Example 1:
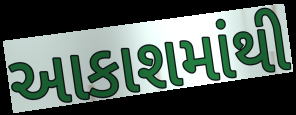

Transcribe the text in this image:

આકાશમાંથી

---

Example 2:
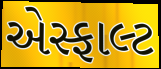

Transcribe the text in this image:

એસ્ફાલ્ટ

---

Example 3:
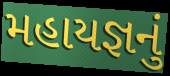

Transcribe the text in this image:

મહાયજ્ઞનું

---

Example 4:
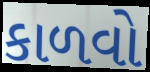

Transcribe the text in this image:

કાળવો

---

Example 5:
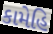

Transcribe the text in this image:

કામેહિ